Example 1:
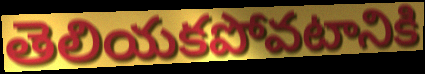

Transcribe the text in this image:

తెలియకపోవటానికి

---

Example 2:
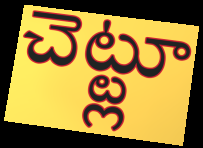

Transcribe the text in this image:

చెట్ట్లూ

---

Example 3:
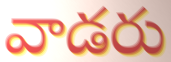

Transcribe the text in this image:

వాడరు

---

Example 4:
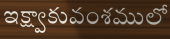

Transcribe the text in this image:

ఇక్ష్వాకువంశములో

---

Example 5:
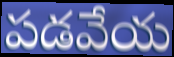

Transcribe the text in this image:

పడవేయ